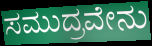
ಸಮುದ್ರವೇನು